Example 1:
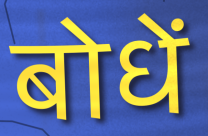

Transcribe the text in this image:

बोधें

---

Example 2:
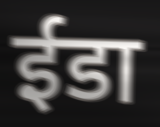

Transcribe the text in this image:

ईडा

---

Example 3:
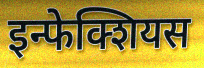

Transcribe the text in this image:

इन्फेक्शियस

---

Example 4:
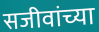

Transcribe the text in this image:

सजीवांच्या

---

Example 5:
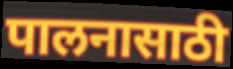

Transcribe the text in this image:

पालनासाठी